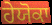
ਹੇਯੋਕਾ